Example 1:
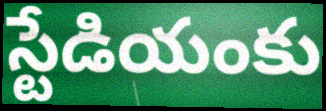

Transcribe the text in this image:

స్టేడియంకు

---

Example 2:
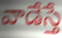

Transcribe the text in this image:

వాడేస్తే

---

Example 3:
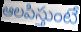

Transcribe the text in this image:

ఆలపిస్తుంటే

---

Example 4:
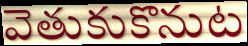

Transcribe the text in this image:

వెతుకుకొనుట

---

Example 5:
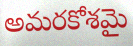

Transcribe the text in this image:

అమరకోశమై